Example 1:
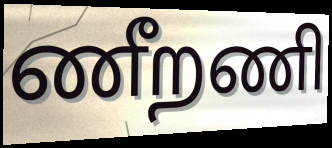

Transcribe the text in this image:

ணீறணி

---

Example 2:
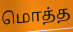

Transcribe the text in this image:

மொத்த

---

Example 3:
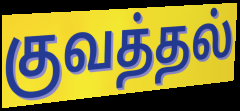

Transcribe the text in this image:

குவத்தல்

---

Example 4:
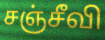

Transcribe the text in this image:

சஞ்சீவி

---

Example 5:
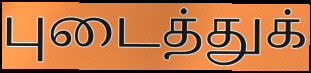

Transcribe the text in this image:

புடைத்துக்